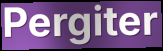
Pergiter